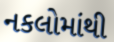
નકલોમાંથી